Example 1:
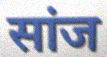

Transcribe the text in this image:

सांज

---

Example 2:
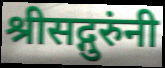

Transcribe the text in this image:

श्रीसद्गुरुंनी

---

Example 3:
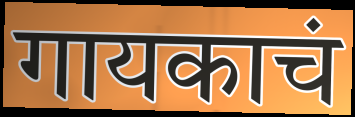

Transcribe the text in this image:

गायकाचं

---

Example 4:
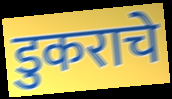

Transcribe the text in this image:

डुकराचे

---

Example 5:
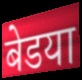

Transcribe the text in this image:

बेडया